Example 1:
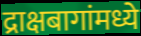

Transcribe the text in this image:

द्राक्षबागांमध्ये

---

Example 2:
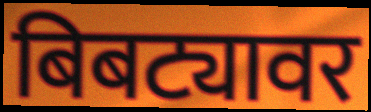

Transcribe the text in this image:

बिबट्यावर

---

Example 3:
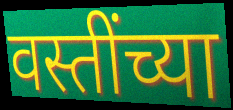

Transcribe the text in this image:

वस्तींच्या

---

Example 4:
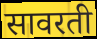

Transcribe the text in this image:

सावरती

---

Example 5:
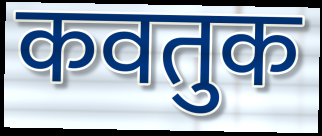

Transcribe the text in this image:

कवतुक